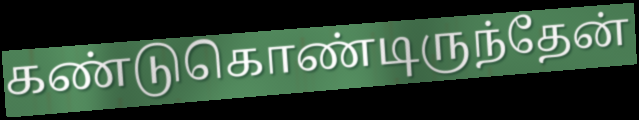
கண்டுகொண்டிருந்தேன்